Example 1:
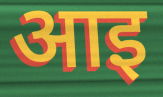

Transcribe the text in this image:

आइ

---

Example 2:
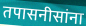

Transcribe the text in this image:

तपासनीसांना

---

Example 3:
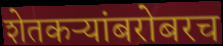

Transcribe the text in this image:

शेतकऱ्यांबरोबरच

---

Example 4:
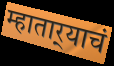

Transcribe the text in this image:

म्हातार्याचं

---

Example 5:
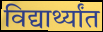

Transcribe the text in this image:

विद्यार्थ्यांत